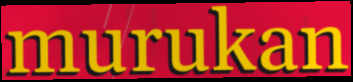
murukan